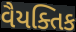
વૈયક્તિક